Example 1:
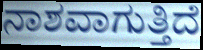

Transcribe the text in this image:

ನಾಶವಾಗುತ್ತಿದೆ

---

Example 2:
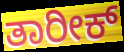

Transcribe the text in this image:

ತಾರೀಕ್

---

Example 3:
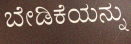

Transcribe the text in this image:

ಬೇಡಿಕೆಯನ್ನು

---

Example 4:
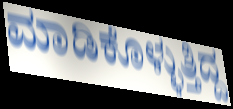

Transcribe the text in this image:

ಮಾಡಿಕೊಳ್ಳುತ್ತಿದ್ದ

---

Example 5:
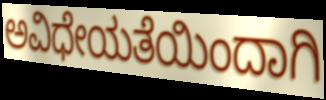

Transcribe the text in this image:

ಅವಿಧೇಯತೆಯಿಂದಾಗಿ